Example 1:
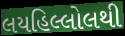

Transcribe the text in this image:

લયહિલ્લોલથી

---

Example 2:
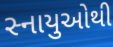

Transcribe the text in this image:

સ્નાયુઓથી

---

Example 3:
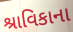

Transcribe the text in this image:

શ્રાવિકાના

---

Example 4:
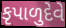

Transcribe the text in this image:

કૃપાળુદેવે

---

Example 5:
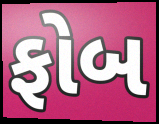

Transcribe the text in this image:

ફોબ